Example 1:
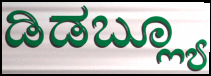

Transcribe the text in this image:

ಡಿಡಬ್ಲ್ಯೂ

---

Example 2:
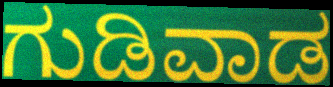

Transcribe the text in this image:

ಗುಡಿವಾಡ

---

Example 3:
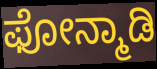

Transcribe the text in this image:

ಫೋನ್ಮಾಡಿ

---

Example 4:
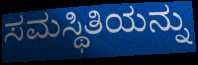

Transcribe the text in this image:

ಸಮಸ್ಥಿತಿಯನ್ನು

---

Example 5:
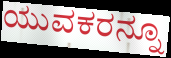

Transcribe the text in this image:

ಯುವಕರನ್ನೂ